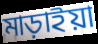
মাড়াইয়া